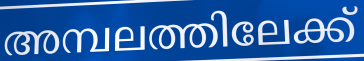
അമ്പലത്തിലേക്ക്